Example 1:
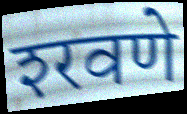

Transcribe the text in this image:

श्रवणे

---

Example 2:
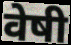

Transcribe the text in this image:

वेषी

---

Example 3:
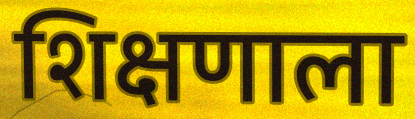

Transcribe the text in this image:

शिक्षणाला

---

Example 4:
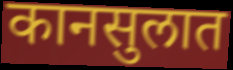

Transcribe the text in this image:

कानसुलात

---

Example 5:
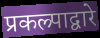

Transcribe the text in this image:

प्रकल्पाद्वारे